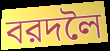
বরদলৈ